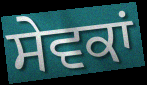
ਸੇਵਕਾਂ